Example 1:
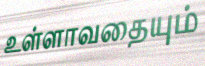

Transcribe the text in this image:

உள்ளாவதையும்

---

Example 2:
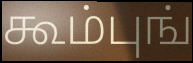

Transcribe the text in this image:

கூம்புங்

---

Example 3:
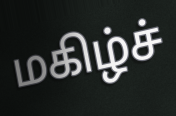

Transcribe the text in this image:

மகிழ்ச்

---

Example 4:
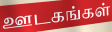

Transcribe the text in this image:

ஊடகங்கள்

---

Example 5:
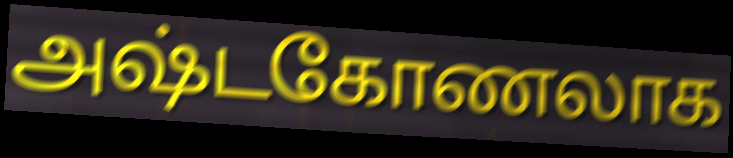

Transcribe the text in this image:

அஷ்டகோணலாக